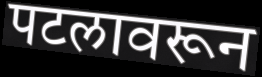
पटलावरून